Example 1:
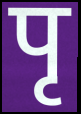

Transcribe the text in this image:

पृ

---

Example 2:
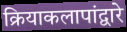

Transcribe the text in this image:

क्रियाकलापांद्वारे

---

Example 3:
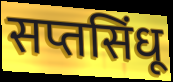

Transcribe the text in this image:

सप्तसिंधू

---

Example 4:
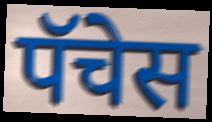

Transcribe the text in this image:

पॅचेस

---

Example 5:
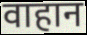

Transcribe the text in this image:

वाहान